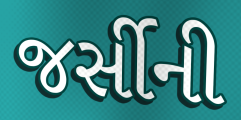
જર્સીની